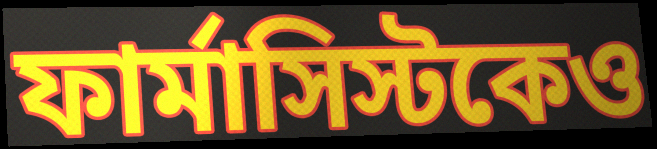
ফার্মাসিস্টকেও